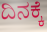
ದಿನಕ್ಕೆ